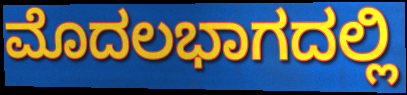
ಮೊದಲಭಾಗದಲ್ಲಿ